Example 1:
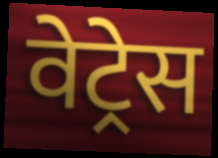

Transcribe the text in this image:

वेट्रेस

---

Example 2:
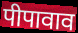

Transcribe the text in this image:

पीपावाव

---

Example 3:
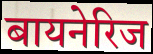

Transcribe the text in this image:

बायनेरिज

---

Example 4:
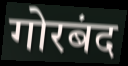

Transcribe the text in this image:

गोरबंद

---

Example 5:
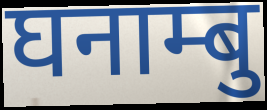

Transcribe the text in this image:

घनाम्बु